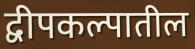
द्वीपकल्पातील